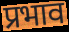
प्रभाव